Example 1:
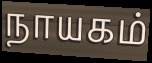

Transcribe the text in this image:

நாயகம்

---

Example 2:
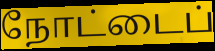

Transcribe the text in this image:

நோட்டைப்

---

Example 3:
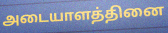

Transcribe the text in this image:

அடையாளத்தினை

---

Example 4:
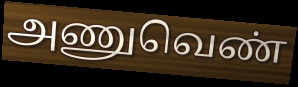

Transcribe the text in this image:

அணுவெண்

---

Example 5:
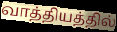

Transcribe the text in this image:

வாத்தியத்தில்